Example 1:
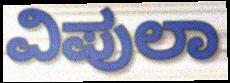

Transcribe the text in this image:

ವಿಪುಲಾ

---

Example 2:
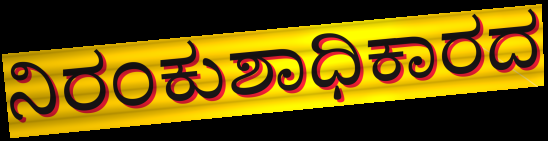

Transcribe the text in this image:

ನಿರಂಕುಶಾಧಿಕಾರದ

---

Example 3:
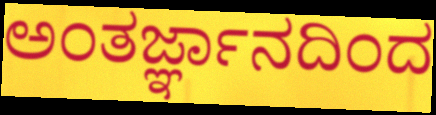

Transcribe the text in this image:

ಅಂತರ್ಜ್ಞಾನದಿಂದ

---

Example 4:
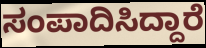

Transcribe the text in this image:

ಸಂಪಾದಿಸಿದ್ದಾರೆ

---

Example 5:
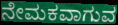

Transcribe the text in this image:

ನೇಮಕವಾಗುವ